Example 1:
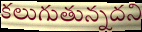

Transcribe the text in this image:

కలుగుతున్నదని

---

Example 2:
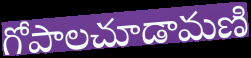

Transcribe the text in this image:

గోపాలచూడామణి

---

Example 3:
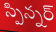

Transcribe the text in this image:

స్పిన్నర్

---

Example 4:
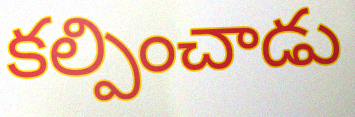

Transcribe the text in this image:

కల్పించాడు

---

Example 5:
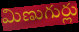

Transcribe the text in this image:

మిణుగుర్లు